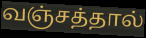
வஞ்சத்தால்